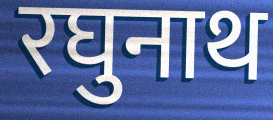
रघुनाथ